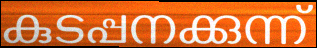
കുടപ്പനക്കുന്ന്